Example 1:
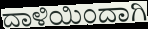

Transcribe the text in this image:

ದಾಳಿಯಿಂದಾಗಿ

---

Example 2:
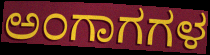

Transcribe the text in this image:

ಅಂಗಾಗಗಳ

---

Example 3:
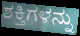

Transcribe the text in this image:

ಶಕ್ತಿಗಳನ್ನು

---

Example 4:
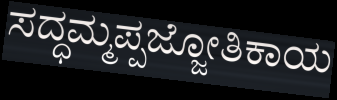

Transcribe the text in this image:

ಸದ್ಧಮ್ಮಪ್ಪಜ್ಜೋತಿಕಾಯ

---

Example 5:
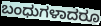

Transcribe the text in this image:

ಬಂಧುಗಳಾದರೂ